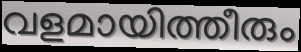
വളമായിത്തീരും